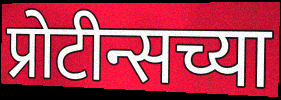
प्रोटीन्सच्या